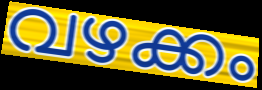
വഴക്കം